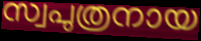
സ്വപുത്രനായ